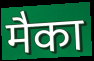
मैका